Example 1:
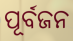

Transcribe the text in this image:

ପୂର୍ବଜନ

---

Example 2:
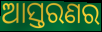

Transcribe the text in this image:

ଆସ୍ତରଣର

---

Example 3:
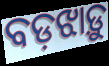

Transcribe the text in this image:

ବଡ଼ଝାଡ଼ୁ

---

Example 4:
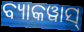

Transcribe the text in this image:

ବ୍ୟାକୱାସ୍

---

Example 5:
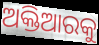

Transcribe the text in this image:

ଅକ୍ତିଆରକୁ